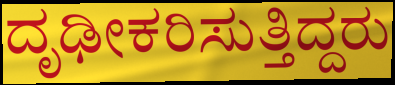
ದೃಢೀಕರಿಸುತ್ತಿದ್ದರು